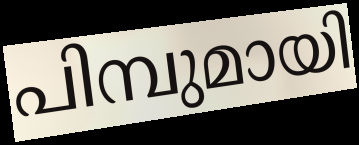
പിമ്പുമായി